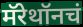
मॅरेथॉनचं